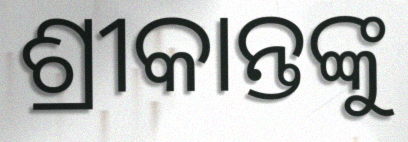
ଶ୍ରୀକାନ୍ତଙ୍କୁ